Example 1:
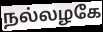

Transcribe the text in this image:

நல்லழகே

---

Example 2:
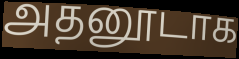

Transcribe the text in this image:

அதனூடாக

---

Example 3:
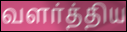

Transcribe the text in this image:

வளர்த்திய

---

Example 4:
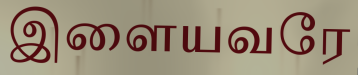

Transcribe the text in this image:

இளையவரே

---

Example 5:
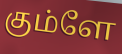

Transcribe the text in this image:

கும்ளே